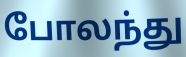
போலந்து